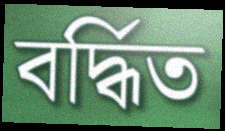
বৰ্দ্ধিত